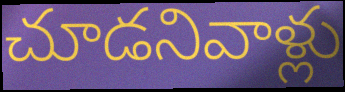
చూడనివాళ్లు